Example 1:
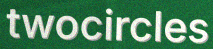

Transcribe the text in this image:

twocircles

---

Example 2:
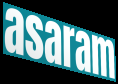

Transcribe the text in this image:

asaram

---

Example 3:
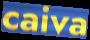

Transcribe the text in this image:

caiva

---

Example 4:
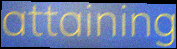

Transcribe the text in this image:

attaining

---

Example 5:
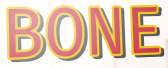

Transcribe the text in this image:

BONE